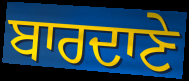
ਬਾਰਦਾਣੇ